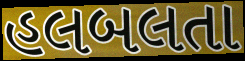
હલબલતા